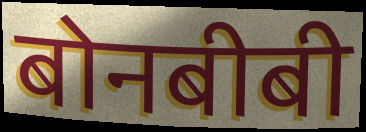
बोनबीबी